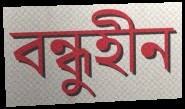
বন্ধুহীন